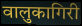
वालुकागिरी